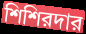
শিশিরদার